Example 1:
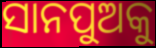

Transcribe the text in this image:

ସାନପୁଅକୁ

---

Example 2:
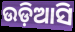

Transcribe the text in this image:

ଉଡ଼ିଆସି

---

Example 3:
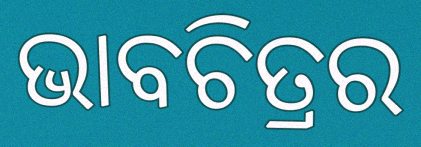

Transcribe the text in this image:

ଭାବଚିତ୍ରର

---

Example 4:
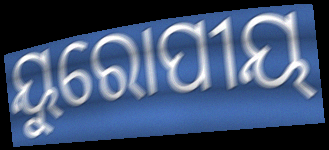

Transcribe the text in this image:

ୟୁରୋପୀୟ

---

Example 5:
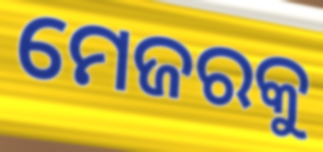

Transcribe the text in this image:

ମେଜରକୁ